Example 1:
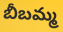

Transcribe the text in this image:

బీబమ్మ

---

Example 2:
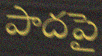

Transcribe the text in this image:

పాదపై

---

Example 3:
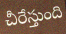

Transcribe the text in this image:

చీరేస్తుంది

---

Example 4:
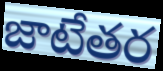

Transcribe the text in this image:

జాటేతర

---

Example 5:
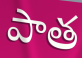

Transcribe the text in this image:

పాత